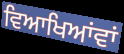
ਵਿਆਖਿਆਂਵਾਂ